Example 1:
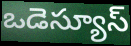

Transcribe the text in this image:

ఒడెస్యూస్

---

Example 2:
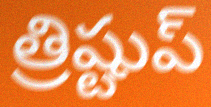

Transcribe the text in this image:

త్రిష్టుప్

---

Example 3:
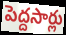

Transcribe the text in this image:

పెద్దసార్లు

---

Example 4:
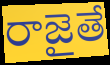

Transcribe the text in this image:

రాజైతే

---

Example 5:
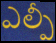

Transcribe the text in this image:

ఎల్పీ